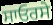
ਸਾਓਰਸੇ